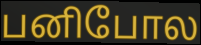
பனிபோல